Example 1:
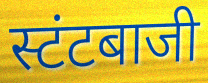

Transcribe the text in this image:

स्टंटबाजी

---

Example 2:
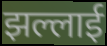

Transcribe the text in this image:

झल्लाई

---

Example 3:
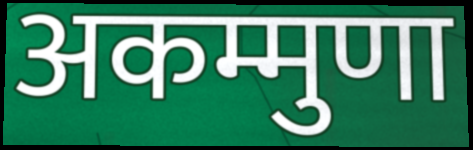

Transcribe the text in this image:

अकम्मुणा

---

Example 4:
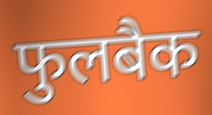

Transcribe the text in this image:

फुलबैक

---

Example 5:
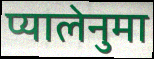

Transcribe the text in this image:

प्यालेनुमा